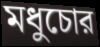
মধুচোর